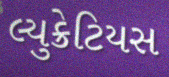
લ્યુક્રેટિયસ